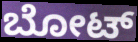
ಬೋಟ್